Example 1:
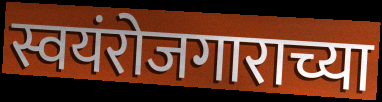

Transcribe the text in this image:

स्वयंरोजगाराच्या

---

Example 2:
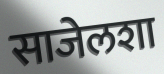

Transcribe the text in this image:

साजेलशा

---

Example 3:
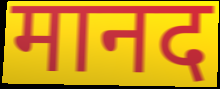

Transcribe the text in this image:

मानद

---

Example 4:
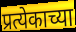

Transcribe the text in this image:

प्रत्येकाच्या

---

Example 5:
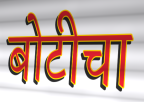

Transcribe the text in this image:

बोटीचा